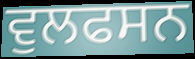
ਵੁਲਫਸਨ